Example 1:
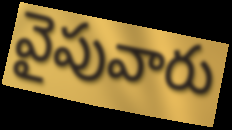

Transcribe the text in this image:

వైపువారు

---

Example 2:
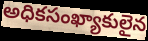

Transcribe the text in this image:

అధికసంఖ్యాకులైన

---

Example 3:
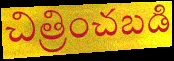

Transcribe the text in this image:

చిత్రించబడి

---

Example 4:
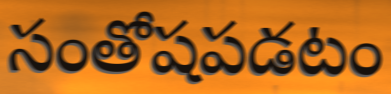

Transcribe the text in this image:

సంతోషపడటం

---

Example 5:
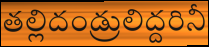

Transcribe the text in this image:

తల్లిదండ్రులిద్దరినీ